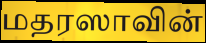
மதரஸாவின்